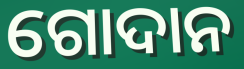
ଗୋଦାନ